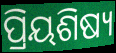
ପ୍ରିୟଶିଷ୍ୟ